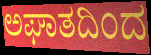
ಅಘಾತದಿಂದ